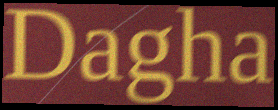
Dagha